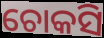
ଚୋକସି